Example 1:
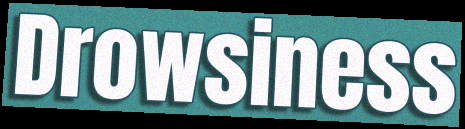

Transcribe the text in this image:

Drowsiness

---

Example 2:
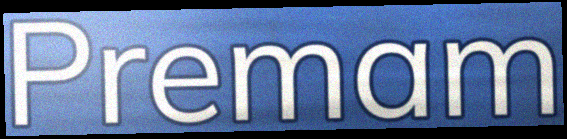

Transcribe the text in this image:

Premam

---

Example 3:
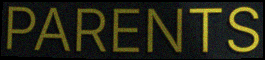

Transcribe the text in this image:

PARENTS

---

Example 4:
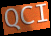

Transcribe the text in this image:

QCI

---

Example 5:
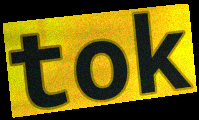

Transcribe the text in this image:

tok